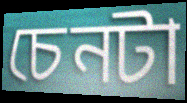
চেনটা